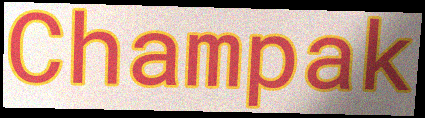
Champak